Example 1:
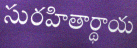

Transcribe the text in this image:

సురహితార్థాయ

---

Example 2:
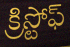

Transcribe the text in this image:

క్రిస్టోఫ్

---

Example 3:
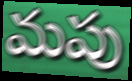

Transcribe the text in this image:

మపు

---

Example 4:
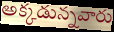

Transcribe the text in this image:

అక్కడున్నవారు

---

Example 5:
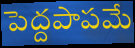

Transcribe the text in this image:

పెద్దపాపమే